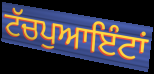
ਟੱਚਪੁਆਇੰਟਾਂ